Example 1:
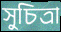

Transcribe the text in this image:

সুচিত্রা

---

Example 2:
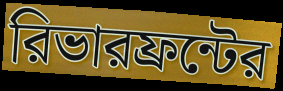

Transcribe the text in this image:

রিভারফ্রন্টের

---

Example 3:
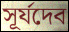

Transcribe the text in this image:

সূর্যদেব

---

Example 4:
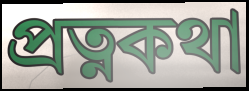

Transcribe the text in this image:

প্রত্নকথা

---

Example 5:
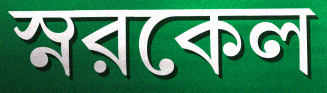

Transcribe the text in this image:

স্নরকেল